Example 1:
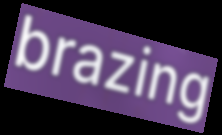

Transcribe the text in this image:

brazing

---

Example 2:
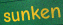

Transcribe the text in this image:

sunken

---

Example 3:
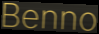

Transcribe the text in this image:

Benno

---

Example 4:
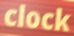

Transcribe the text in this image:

clock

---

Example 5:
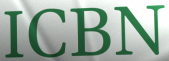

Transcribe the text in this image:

ICBN